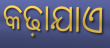
କଢ଼ାଯାଏ